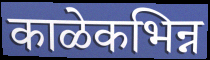
काळेकभिन्न